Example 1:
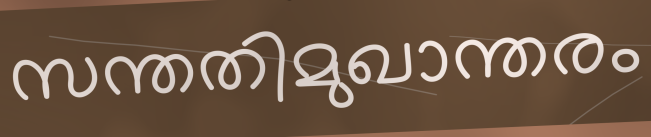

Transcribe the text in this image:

സന്തതിമുഖാന്തരം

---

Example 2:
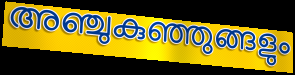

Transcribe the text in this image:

അഞ്ചുകുഞ്ഞുങ്ങളും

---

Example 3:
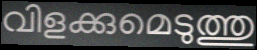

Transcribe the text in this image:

വിളക്കുമെടുത്തു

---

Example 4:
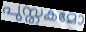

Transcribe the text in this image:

പുസ്തകമോ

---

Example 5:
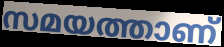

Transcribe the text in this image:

സമയത്താണ്